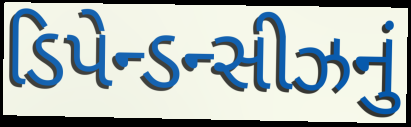
ડિપેન્ડન્સીઝનું